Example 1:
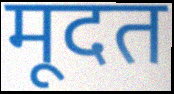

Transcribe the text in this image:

मूदत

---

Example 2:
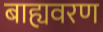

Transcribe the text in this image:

बाह्यवरण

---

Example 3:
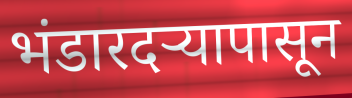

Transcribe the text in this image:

भंडारदऱ्यापासून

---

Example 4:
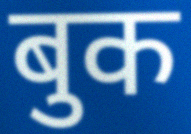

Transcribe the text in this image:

बुक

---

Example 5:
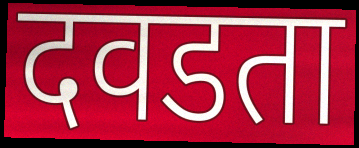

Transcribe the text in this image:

दवडता